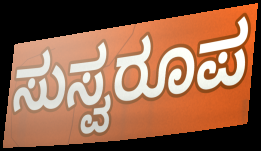
ಸುಸ್ವರೂಪ